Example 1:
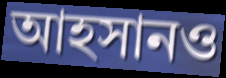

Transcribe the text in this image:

আহসানও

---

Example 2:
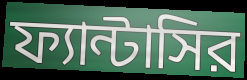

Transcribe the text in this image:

ফ্যান্টাসির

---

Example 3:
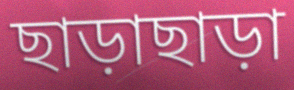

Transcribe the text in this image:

ছাড়াছাড়া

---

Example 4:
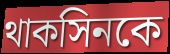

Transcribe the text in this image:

থাকসিনকে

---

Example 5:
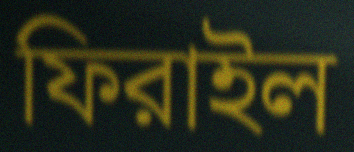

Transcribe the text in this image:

ফিরাইল